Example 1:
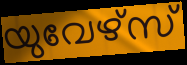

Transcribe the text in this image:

യുവേഴ്സ്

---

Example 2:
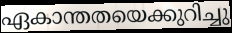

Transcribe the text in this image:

ഏകാന്തതയെക്കുറിച്ചു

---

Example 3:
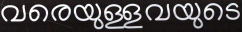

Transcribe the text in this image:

വരെയുള്ളവയുടെ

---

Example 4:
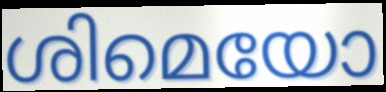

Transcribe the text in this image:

ശിമെയോ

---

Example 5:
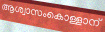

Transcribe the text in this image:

ആശ്വാസംകൊള്ളാന്